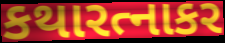
કથારત્નાકર